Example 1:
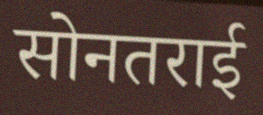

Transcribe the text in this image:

सोनतराई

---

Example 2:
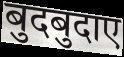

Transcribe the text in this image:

बुदबुदाए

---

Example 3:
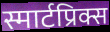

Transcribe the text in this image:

स्मार्टप्रिक्स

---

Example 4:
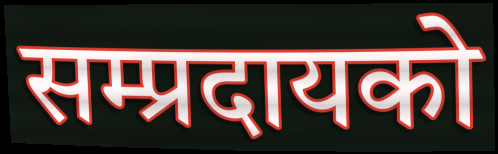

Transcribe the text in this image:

सम्प्रदायको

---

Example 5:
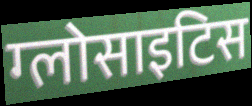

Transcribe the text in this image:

ग्लोसाइटिस